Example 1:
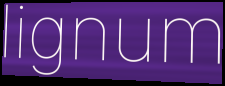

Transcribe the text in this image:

lignum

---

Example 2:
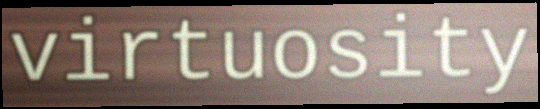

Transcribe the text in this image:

virtuosity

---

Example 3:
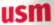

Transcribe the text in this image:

usm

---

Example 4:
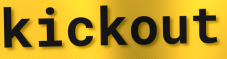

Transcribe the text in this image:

kickout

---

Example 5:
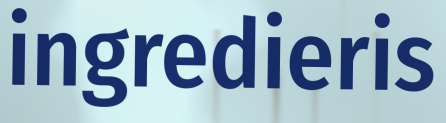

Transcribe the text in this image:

ingredieris